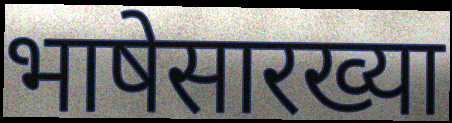
भाषेसारख्या